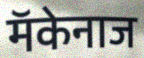
मॅकेनाज